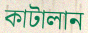
কাটালান